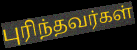
புரிந்தவர்கள்